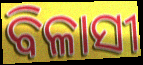
ବିଳାସୀ